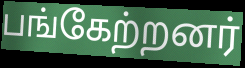
பங்கேற்றனர்